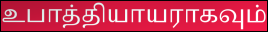
உபாத்தியாயராகவும்